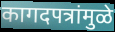
कागदपत्रांमुळे